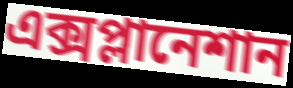
এক্সপ্লানেশান